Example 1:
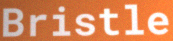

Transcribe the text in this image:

Bristle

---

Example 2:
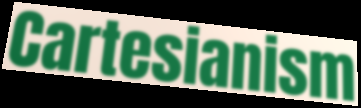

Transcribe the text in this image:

Cartesianism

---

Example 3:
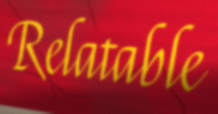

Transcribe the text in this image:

Relatable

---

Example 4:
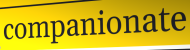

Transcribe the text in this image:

companionate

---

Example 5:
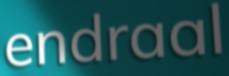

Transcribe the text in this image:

endraal